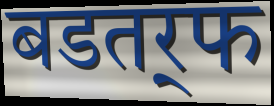
बडतर्फ